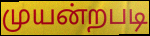
முயன்றபடி